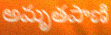
అమృతపాణి